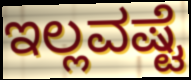
ಇಲ್ಲವಷ್ಟೆ